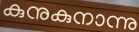
കുനുകുനാന്നു